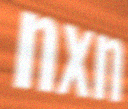
nxn